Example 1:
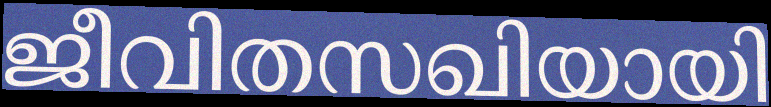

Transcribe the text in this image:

ജീവിതസഖിയായി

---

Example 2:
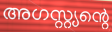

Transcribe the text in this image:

അഗസ്റ്റ്യന്റെ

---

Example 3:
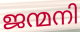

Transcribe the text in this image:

ജന്മനി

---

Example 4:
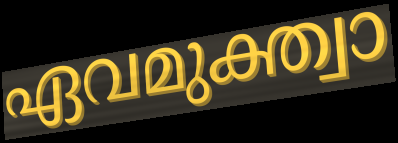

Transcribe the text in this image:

ഏവമുക്ത്വാ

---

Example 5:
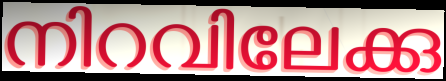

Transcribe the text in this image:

നിറവിലേക്കു